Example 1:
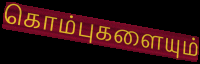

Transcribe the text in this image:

கொம்புகளையும்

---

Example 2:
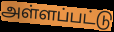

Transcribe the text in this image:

அள்ளப்பட்டு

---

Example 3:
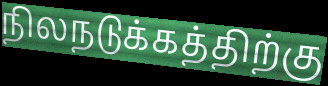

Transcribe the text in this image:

நிலநடுக்கத்திற்கு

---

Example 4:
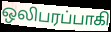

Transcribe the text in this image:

ஒலிபரப்பாகி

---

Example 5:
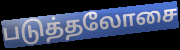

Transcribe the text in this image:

படுத்தலோசை